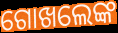
ଗୋଖଲେଙ୍କ